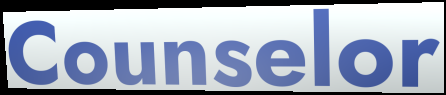
Counselor